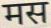
मस